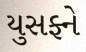
યુસફ્ને